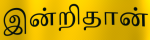
இன்றிதான்